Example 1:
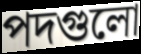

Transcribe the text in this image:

পদগুলো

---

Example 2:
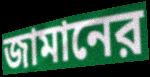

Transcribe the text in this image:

জামানের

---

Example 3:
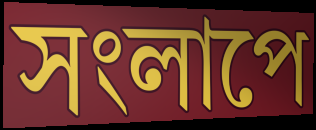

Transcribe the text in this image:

সংলাপে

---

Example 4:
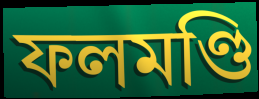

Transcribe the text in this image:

ফলমণ্ডি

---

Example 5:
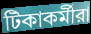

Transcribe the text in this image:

টিকাকর্মীরা